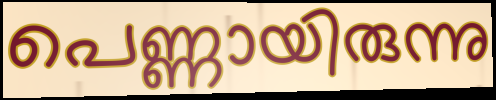
പെണ്ണായിരുന്നു